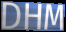
DHM